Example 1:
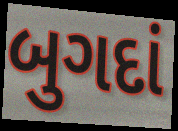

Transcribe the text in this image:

બુગદાં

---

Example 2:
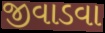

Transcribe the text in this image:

જીવાડવા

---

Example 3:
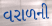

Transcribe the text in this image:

વરાળની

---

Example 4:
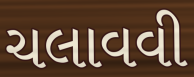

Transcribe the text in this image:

ચલાવવી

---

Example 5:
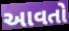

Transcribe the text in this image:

આવતો